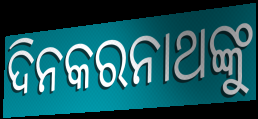
ଦିନକରନାଥଙ୍କୁ